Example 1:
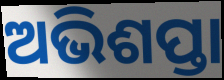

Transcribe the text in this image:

ଅଭିଶପ୍ତା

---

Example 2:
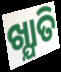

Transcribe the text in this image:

ଖ୍ଯାତି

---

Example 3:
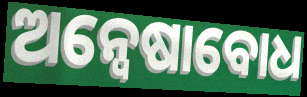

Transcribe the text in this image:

ଅନ୍ୱେଷାବୋଧ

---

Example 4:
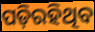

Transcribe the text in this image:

ପଡ଼ିରହିଥିବ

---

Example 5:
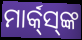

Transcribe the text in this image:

ମାର୍କ୍‌ସ୍‌ଙ୍କ